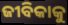
ଜୀବିକାକୁ